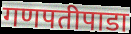
गणपतीपाडा